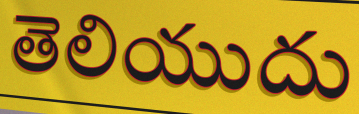
తెలియుదు